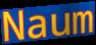
Naum